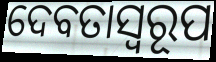
ଦେବତାସ୍ୱରୂପ